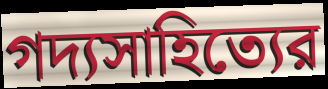
গদ্যসাহিত্যের